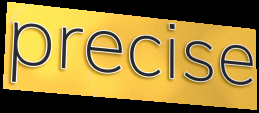
precise